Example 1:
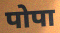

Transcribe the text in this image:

पोपा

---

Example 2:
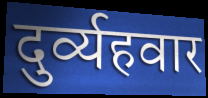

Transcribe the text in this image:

दुर्व्यहवार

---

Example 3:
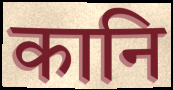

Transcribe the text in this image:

कानि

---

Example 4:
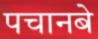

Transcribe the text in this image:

पचानबे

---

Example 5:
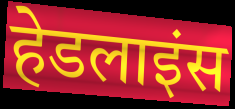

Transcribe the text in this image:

हेडलाइंस